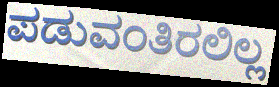
ಪಡುವಂತಿರಲಿಲ್ಲ